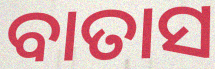
ବାତାସ